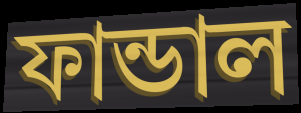
ফান্ডাল